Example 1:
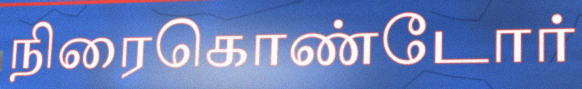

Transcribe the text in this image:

நிரைகொண்டோர்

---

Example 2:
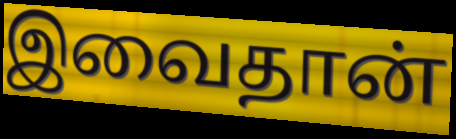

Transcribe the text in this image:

இவைதான்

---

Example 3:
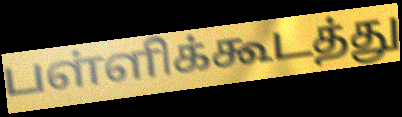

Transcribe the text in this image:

பள்ளிக்கூடத்து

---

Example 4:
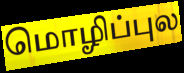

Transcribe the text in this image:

மொழிப்புல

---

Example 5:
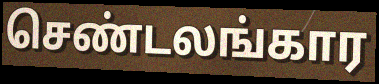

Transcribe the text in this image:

செண்டலங்கார